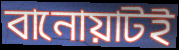
বানোয়াটই